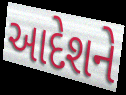
આદેશને